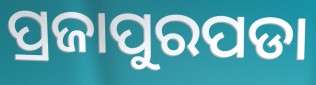
ପ୍ରଜାପୁରପଡା